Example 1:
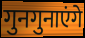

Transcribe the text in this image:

गुनगुनाएंगे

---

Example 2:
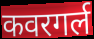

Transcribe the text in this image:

कवरगर्ल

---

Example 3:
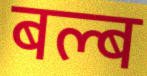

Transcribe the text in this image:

बल्ब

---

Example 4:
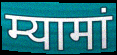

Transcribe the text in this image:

म्यामां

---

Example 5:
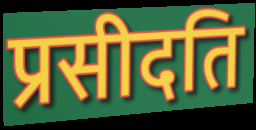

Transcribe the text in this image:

प्रसीदति